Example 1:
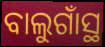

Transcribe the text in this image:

ବାଲୁଗାଁସ୍ଥ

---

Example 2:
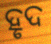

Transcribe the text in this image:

ହୃଦ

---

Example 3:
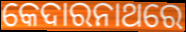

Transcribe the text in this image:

କେଦାରନାଥରେ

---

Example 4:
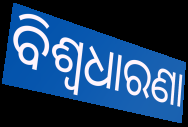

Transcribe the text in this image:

ବିଶ୍ୱଧାରଣା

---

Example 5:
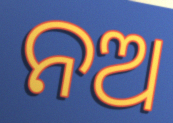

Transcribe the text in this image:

ନଅ